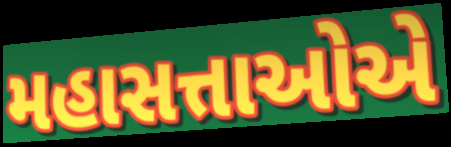
મહાસત્તાઓએ